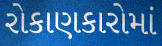
રોકાણકારોમાં